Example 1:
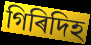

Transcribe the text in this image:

গিৰিদিহ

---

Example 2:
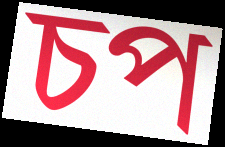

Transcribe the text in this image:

চপ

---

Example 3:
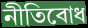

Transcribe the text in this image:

নীতিবোধ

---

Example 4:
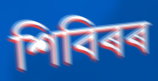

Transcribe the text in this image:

শিবিৰৰ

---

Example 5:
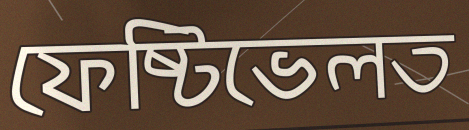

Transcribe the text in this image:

ফেষ্টিভেলত